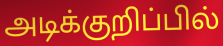
அடிக்குறிப்பில்